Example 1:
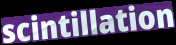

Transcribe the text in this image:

scintillation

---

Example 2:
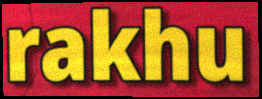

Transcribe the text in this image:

rakhu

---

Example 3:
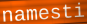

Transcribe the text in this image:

namesti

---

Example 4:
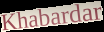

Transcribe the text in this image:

Khabardar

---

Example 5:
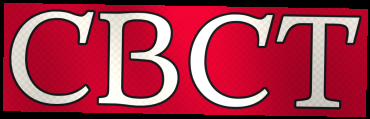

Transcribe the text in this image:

CBCT